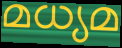
മധ്യമ